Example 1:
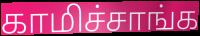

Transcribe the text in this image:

காமிச்சாங்க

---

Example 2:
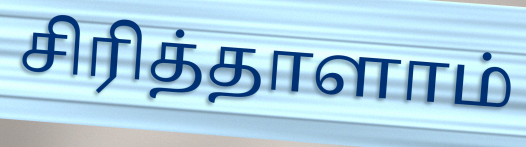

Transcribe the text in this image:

சிரித்தாளாம்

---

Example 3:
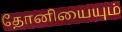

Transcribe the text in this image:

தோனியையும்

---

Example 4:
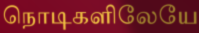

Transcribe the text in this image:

நொடிகளிலேயே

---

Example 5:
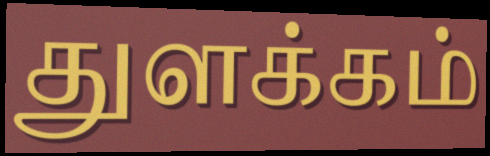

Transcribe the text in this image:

துளக்கம்